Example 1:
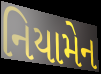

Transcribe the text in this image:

નિયામેન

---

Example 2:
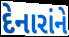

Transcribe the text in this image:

દેનારાંને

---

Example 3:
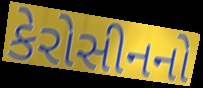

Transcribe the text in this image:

કેરોસીનનો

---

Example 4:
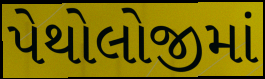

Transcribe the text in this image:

પેથોલોજીમાં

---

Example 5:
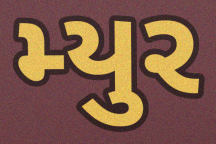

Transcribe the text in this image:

મ્યુર